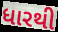
ધારથી